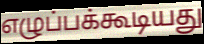
எழுப்பக்கூடியது